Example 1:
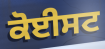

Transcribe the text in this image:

ਕੋਈਸਟ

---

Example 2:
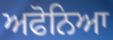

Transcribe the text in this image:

ਅਫੋਨਿਆ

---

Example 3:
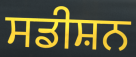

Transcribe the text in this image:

ਸਡੀਸ਼ਨ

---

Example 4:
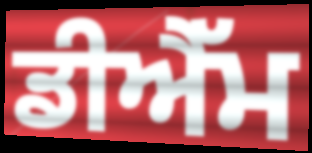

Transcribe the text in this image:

ਡੀਐੱਮ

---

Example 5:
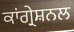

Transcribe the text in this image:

ਕਾਂਗ੍ਰੇਸ਼ਨਲ